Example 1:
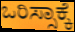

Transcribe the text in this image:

ಒರಿಸ್ಸಾಕ್ಕೆ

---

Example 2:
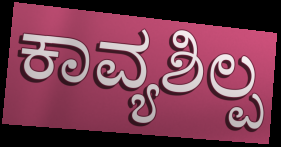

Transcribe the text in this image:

ಕಾವ್ಯಶಿಲ್ಪ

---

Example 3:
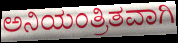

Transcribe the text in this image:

ಅನಿಯಂತ್ರಿತವಾಗಿ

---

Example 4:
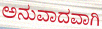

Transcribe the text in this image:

ಅನುವಾದವಾಗಿ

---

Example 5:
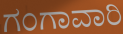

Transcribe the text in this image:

ಗಂಗಾವಾರಿ